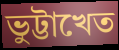
ভুট্টাখেত